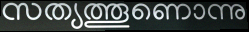
സത്യത്തൂണൊന്നു